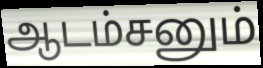
ஆடம்சனும்